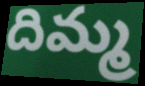
దిమ్మ